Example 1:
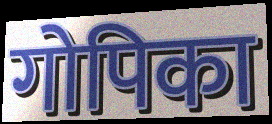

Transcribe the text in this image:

गोपिका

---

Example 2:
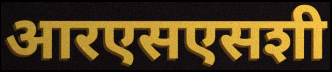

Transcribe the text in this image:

आरएसएसशी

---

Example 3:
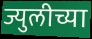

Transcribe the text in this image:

ज्युलीच्या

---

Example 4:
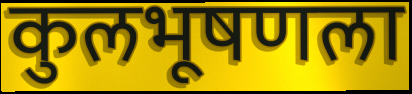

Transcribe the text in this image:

कुलभूषणला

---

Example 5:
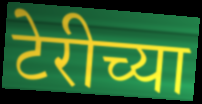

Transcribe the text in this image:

टेरीच्या